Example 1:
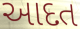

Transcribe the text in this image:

આદત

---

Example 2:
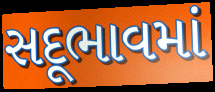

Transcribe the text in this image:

સદૂભાવમાં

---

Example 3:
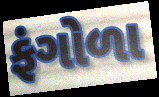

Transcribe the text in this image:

ફંગોળા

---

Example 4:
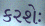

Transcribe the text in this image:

કરશેઃ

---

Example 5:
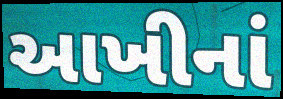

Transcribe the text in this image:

આખીનાં